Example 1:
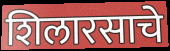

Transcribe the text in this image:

शिलारसाचे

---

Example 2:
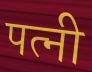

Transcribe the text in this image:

पत्नी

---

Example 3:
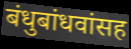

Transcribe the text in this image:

बंधुबांधवांसह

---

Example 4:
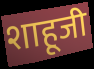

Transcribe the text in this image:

शाहूजी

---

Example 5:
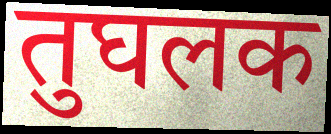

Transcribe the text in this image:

तुघलक